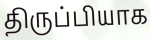
திருப்பியாக